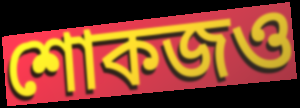
শোকজও